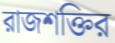
রাজশক্তির